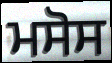
ਮਸੋਸ